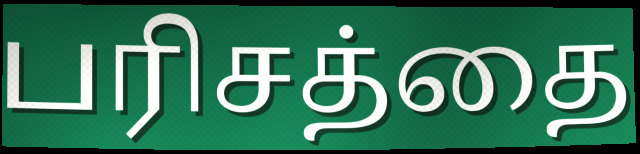
பரிசத்தை